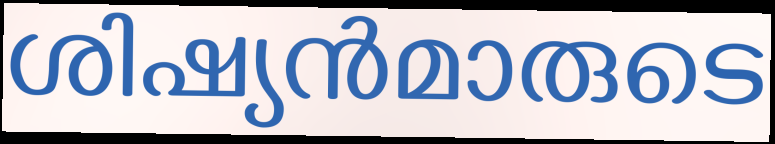
ശിഷ്യൻമാരുടെ